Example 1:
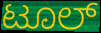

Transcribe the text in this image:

ಟೂಲ್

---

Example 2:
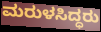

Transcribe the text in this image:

ಮರುಳಸಿದ್ಧರು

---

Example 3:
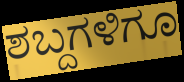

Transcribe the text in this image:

ಶಬ್ದಗಳಿಗೂ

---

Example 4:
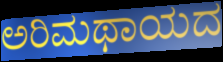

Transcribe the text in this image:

ಅರಿಮಥಾಯದ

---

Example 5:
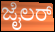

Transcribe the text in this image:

ಜೈಲರ್